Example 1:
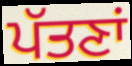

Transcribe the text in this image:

ਪੱਤਣਾਂ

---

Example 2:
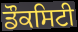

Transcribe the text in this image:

ਡੌਕਸਿਟੀ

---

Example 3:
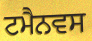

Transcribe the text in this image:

ਟਮੈਨਵਸ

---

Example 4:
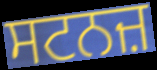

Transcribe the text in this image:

ਸਟਨਜ਼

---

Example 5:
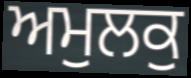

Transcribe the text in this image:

ਅਮੁਲਕੁ